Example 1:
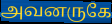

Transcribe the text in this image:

அவனருகே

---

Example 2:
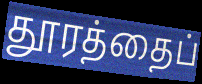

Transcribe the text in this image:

தூரத்தைப்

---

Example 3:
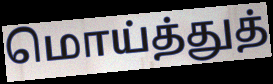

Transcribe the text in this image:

மொய்த்துத்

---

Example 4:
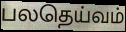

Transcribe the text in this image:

பலதெய்வம்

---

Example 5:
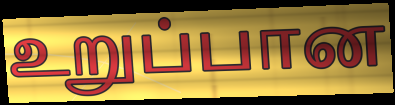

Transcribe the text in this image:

உறுப்பான